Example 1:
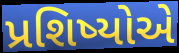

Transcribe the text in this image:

પ્રશિષ્યોએ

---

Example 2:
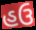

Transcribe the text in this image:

હઉ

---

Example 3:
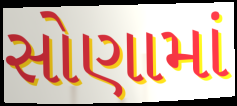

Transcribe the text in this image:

સોણામાં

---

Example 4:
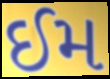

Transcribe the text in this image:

ઈમ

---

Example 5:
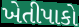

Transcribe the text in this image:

ખેતીપાકો